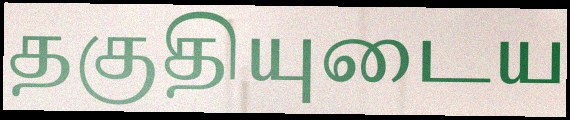
தகுதியுடைய